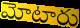
మోటారు